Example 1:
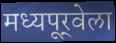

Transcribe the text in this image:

मध्यपूर्वेला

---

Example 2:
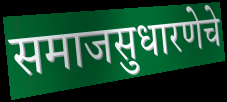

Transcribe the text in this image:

समाजसुधारणेचे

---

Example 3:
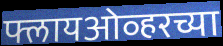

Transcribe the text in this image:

फ्लायओव्हरच्या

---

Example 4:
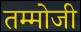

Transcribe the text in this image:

तम्मोजी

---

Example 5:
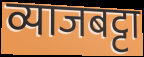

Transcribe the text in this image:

व्याजबट्टा